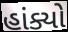
હાંક્યો